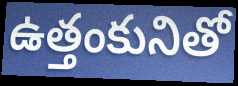
ఉత్తంకునితో